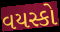
વયસ્કો